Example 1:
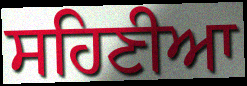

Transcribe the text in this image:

ਸਹਿਣੀਆ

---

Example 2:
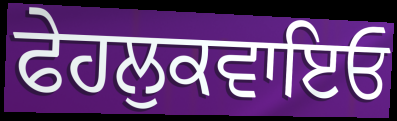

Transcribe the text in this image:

ਫੇਹਲੁਕਵਾਇਓ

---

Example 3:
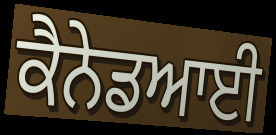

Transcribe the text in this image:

ਕੈਨੇਡਆਈ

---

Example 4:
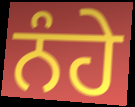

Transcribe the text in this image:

ਨੰਹੇ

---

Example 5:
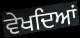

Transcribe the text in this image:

ਵੇਖਦਿਆਂ